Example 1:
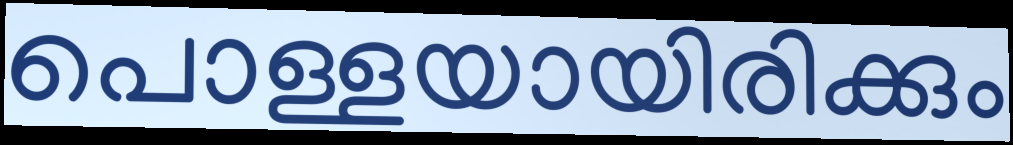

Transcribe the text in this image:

പൊള്ളയായിരിക്കും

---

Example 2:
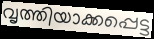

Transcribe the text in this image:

വൃത്തിയാക്കപ്പെട്ട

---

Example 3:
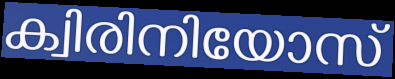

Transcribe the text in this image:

ക്വിരിനിയോസ്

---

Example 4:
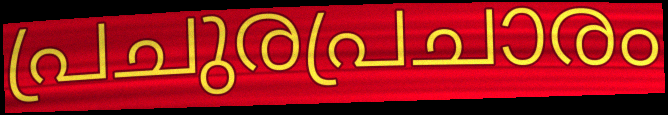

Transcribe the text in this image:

പ്രചുരപ്രചാരം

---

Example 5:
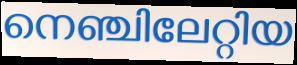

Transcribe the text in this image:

നെഞ്ചിലേറ്റിയ